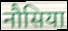
नौसिया